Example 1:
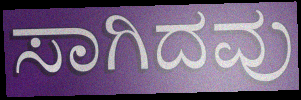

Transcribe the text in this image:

ಸಾಗಿದವು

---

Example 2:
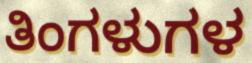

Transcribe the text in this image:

ತಿಂಗಳುಗಳ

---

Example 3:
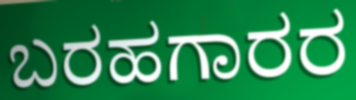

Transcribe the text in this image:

ಬರಹಗಾರರ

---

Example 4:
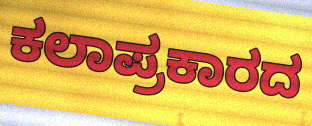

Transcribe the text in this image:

ಕಲಾಪ್ರಕಾರದ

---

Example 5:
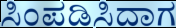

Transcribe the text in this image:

ಸಿಂಪಡಿಸಿದಾಗ